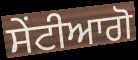
ਸੇਂਟੀਆਗੋ